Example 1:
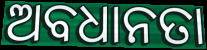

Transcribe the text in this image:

ଅବଧାନତା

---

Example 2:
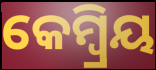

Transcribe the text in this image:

କେମ୍ବ୍ରିୟ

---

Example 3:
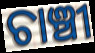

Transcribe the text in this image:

ଚାଞ୍ଚୀ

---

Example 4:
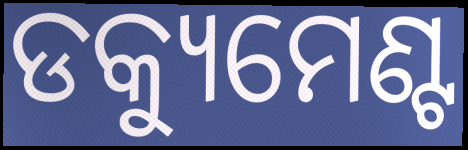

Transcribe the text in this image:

ଡକ୍ୟୁମେଣ୍ଟ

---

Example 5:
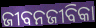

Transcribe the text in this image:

ଜୀବନଜୀବିକା